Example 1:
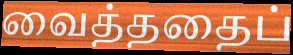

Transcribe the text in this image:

வைத்ததைப்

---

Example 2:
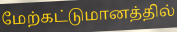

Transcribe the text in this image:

மேற்கட்டுமானத்தில்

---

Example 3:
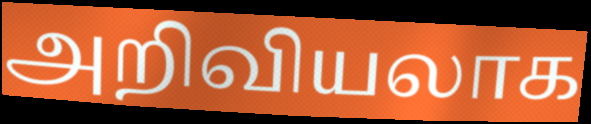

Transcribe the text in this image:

அறிவியலாக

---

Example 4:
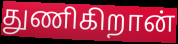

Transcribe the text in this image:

துணிகிறான்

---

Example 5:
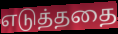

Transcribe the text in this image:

எடுத்ததை